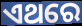
ଏଥରେ